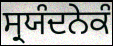
ਸ੍ਰਯੰਦਨੇਕੰ